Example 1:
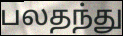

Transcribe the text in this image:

பலதந்து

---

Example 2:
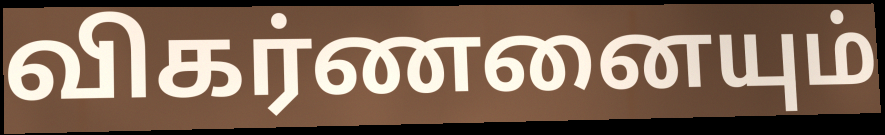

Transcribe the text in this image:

விகர்ணனையும்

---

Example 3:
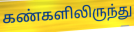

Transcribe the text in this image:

கண்களிலிருந்து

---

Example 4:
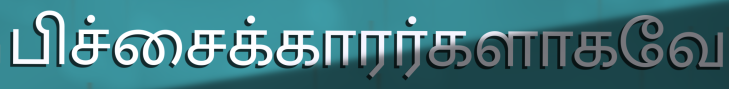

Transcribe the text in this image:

பிச்சைக்காரர்களாகவே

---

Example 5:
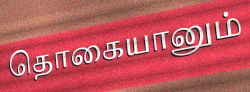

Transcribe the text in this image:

தொகையானும்